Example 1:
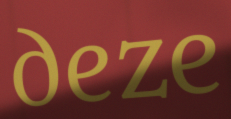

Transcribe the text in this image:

deze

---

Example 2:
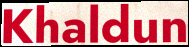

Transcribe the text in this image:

Khaldun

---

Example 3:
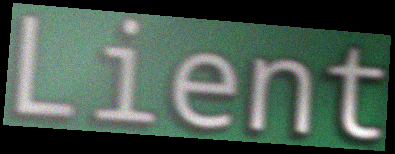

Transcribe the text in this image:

Lient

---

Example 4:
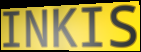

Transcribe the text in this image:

INKIS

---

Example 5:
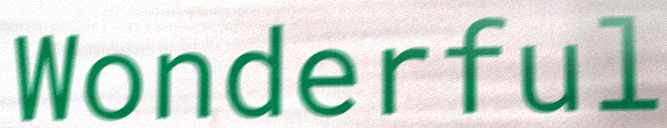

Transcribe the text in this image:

Wonderful